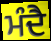
ਮੰਦੈ